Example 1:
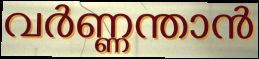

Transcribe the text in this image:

വർണ്ണന്താൻ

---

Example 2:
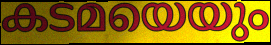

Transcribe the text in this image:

കടമയെയും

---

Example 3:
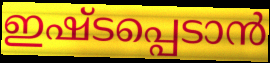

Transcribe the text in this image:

ഇഷ്ടപ്പെടാൻ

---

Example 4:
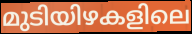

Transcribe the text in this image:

മുടിയിഴകളിലെ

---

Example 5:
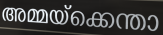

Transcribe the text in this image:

അമ്മയ്‌ക്കെന്താ